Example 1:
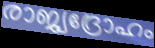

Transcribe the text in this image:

രാജ്യദ്രോഹം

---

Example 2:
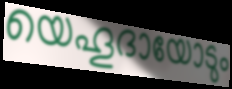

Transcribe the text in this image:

യെഹൂദായോടും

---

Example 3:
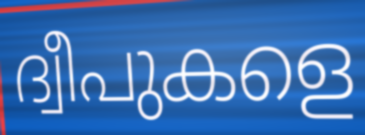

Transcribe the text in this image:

ദ്വീപുകളെ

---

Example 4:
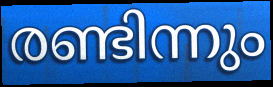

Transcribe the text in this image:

രണ്ടിന്നും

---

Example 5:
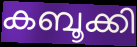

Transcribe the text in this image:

കബൂക്കി